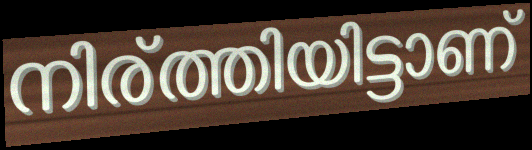
നിര്ത്തിയിട്ടാണ്